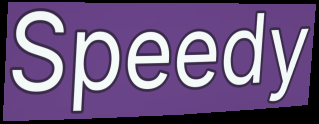
Speedy